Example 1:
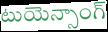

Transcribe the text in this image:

టుయెన్సాంగ్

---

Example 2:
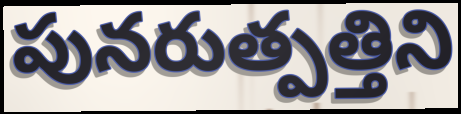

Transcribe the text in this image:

పునరుత్పత్తిని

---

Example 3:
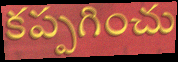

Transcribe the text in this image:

కప్పగించు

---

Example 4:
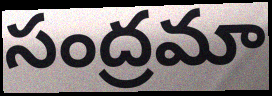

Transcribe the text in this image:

సంద్రమా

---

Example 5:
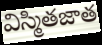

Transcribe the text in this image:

విస్మితజాత